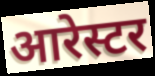
आरेस्टर